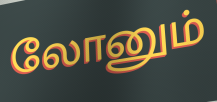
லோனும்